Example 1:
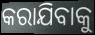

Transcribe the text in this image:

କରାଯିବାକୁ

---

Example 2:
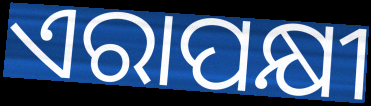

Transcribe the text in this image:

ଏରାପକ୍ଷୀ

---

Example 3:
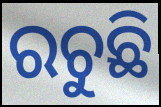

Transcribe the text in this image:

ରଚୁଛି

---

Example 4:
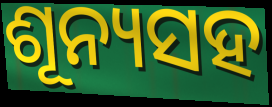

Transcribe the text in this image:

ଶୂନ୍ୟସହ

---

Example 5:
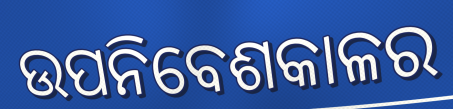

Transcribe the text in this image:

ଉପନିବେଶକାଳର